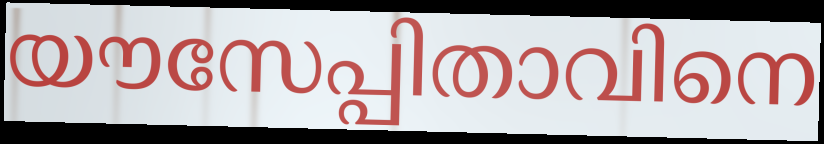
യൗസേപ്പിതാവിനെ